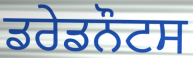
ਡਰੇਡਨੌਟਸ